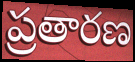
ప్రతారణ